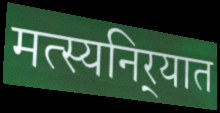
मत्स्यनिर्यात